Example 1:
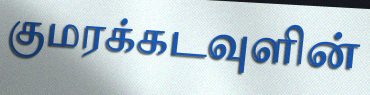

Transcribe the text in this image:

குமரக்கடவுளின்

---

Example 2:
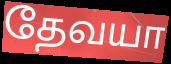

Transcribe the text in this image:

தேவயா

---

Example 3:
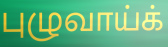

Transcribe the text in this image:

புழுவாய்க்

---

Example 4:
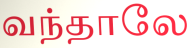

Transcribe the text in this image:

வந்தாலே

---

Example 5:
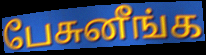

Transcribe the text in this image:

பேசுனீங்க